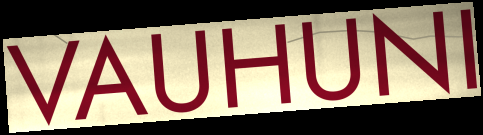
VAUHUNI